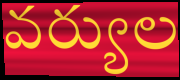
వర్యుల